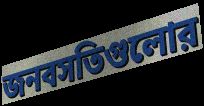
জনবসতিগুলোর